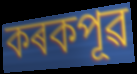
কৰকপূৱ